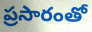
ప్రసారంతో